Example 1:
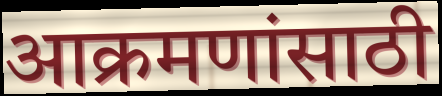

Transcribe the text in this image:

आक्रमणांसाठी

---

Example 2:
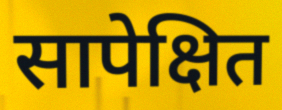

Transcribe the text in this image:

सापेक्षित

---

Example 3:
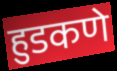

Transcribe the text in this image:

हुडकणे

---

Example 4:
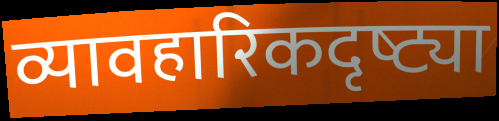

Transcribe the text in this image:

व्यावहारिकदृष्ट्या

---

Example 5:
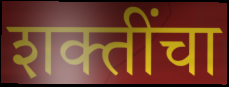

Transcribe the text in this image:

शक्तींचा